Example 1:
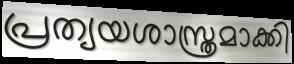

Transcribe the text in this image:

പ്രത്യയശാസ്ത്രമാക്കി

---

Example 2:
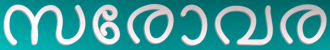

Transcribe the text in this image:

സരോവര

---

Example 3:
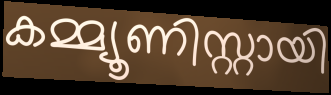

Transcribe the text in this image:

കമ്മ്യൂണിസ്റ്റായി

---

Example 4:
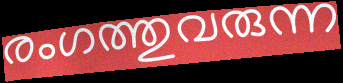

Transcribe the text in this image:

രംഗത്തുവരുന്ന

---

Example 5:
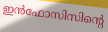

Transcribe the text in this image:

ഇൻഫോസിസിന്റെ